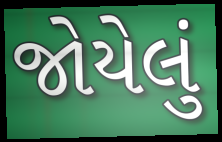
જોયેલું